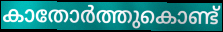
കാതോർത്തുകൊണ്ട്